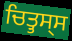
ਚਿਤ੍ਤਸ੍ਸ